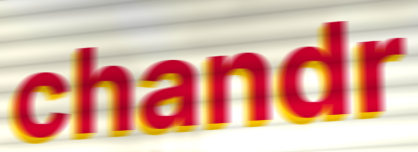
chandr